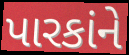
પારકાંને